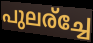
പുലര്ച്ചേ